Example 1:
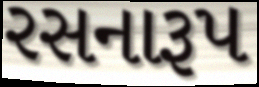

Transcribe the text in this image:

રસનારૂપ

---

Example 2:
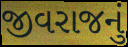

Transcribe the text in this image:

જીવરાજનું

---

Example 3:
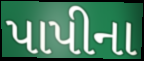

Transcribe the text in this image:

પાપીના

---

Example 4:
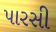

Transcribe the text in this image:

પારસી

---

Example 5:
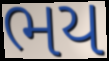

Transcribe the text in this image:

ભય